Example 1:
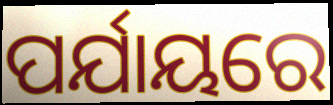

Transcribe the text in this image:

ପର୍ଯାୟରେ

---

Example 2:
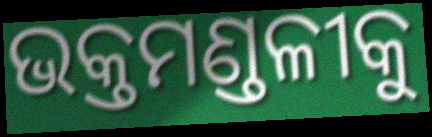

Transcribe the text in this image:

ଭକ୍ତମଣ୍ଡଳୀକୁ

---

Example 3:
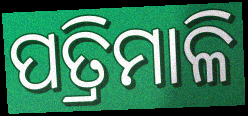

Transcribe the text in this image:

ପତ୍ରିମାଳି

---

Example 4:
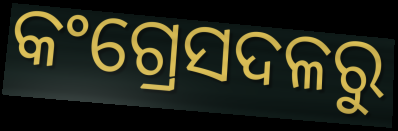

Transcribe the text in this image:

କଂଗ୍ରେସଦଳରୁ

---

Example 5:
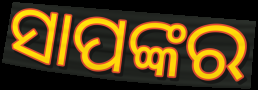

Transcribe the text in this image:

ସାପଙ୍କର